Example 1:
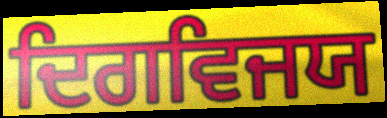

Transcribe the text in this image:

ਦਿਗਵਿਜਯ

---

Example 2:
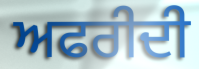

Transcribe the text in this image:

ਅਫਰੀਦੀ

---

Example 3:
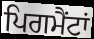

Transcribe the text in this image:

ਪਿਗਮੈਂਟਾਂ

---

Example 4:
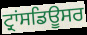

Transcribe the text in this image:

ਟ੍ਰਾਂਸਡਿਊਸਰ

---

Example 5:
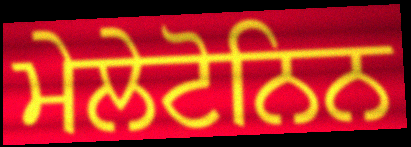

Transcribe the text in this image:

ਮੇਲੇਟੋਨਿਨ